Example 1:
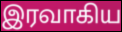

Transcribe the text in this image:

இரவாகிய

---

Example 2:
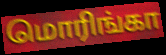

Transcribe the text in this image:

மொரிங்கா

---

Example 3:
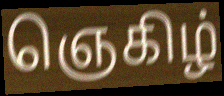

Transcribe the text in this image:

ஞெகிழ்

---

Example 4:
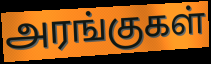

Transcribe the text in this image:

அரங்குகள்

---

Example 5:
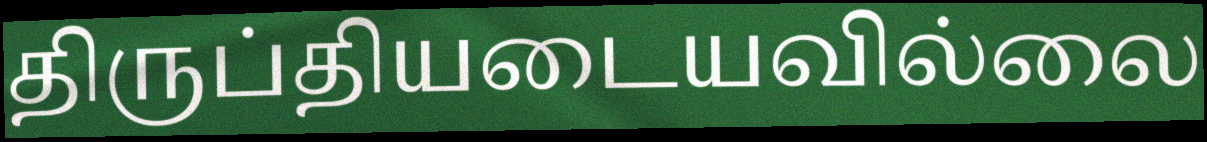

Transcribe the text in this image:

திருப்தியடையவில்லை